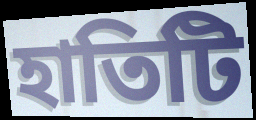
হাতিটি